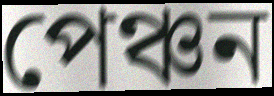
পেঞ্চন